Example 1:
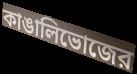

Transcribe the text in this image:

কাঙালিভোজের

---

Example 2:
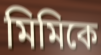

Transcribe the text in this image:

মিমিকে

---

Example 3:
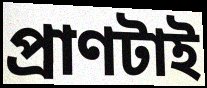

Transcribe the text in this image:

প্রাণটাই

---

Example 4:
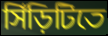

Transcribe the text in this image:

সিঁড়িটিতে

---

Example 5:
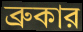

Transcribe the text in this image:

ব্রুকার